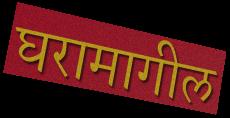
घरामागील